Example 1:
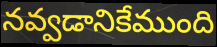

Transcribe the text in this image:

నవ్వడానికేముంది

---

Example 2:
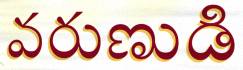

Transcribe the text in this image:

వరుణుడి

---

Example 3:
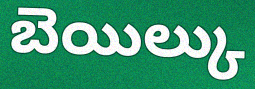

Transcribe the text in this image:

బెయిల్కు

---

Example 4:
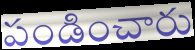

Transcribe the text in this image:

పండించారు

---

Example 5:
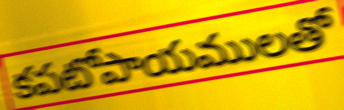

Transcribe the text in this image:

కపటోపాయములతో